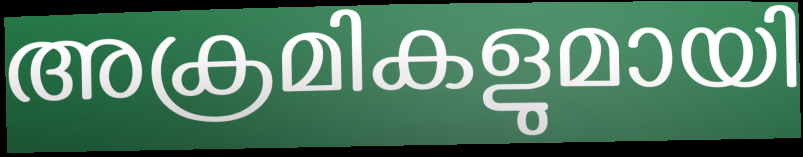
അക്രമികളുമായി